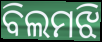
ବିଲମଝି